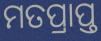
ମତପ୍ରାପ୍ତ